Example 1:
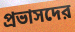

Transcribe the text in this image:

প্রভাসদের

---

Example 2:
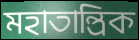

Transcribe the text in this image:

মহাতান্ত্রিক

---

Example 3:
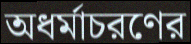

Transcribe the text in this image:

অধর্মাচরণের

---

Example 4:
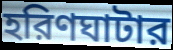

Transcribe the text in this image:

হরিণঘাটার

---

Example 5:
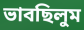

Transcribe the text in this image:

ভাবছিলুম